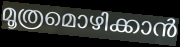
മൂത്രമൊഴിക്കാൻ